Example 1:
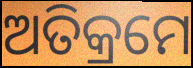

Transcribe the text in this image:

ଅତିକ୍ରମେ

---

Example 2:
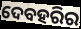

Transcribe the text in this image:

ଦେବହରିର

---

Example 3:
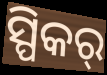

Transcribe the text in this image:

ସ୍ପିକର୍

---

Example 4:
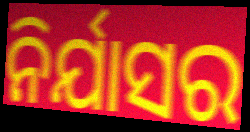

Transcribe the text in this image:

ନିର୍ଯାସର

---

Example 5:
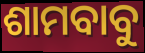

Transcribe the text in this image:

ଶାମବାବୁ